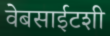
वेबसाईटशी